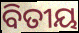
ବିତୀୟ